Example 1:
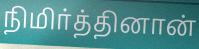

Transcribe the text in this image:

நிமிர்த்தினான்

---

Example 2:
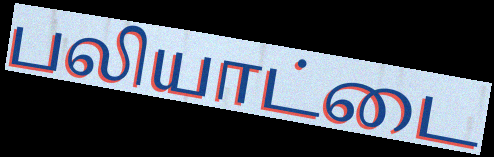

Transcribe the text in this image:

பலியாட்டை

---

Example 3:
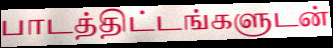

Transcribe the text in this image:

பாடத்திட்டங்களுடன்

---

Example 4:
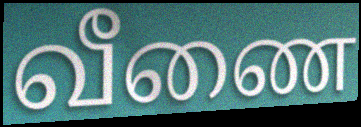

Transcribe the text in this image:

வீணை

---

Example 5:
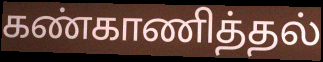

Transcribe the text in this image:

கண்காணித்தல்